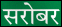
सरोबर